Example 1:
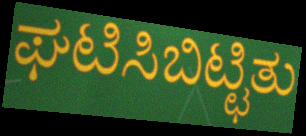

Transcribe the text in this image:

ಘಟಿಸಿಬಿಟ್ಟಿತು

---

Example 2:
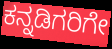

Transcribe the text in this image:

ಕನ್ನಡಿಗರಿಗೇ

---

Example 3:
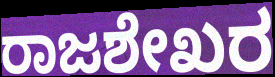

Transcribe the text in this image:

ರಾಜಶೇಖರ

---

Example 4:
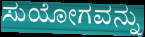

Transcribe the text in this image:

ಸುಯೋಗವನ್ನು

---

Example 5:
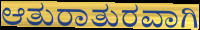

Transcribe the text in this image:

ಆತುರಾತುರವಾಗಿ